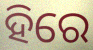
ହିରେ